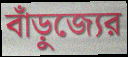
বাঁড়ুজ্যের